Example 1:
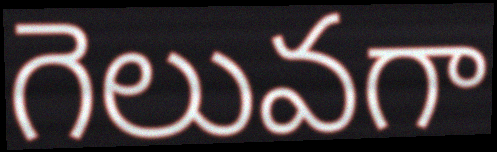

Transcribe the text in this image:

గెలువగా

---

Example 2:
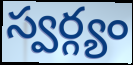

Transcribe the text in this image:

స్వర్గ్యం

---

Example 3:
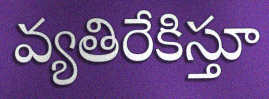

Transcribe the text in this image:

వ్యతిరేకిస్తూ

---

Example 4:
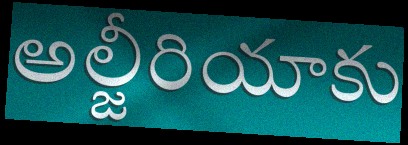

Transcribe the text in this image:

అల్జీరియాకు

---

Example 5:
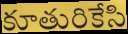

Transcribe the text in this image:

కూతురికేసి